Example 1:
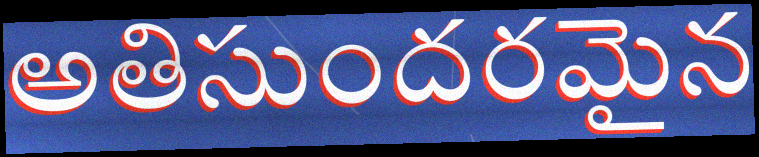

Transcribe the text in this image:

అతిసుందరమైన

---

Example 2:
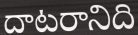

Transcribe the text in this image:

దాటరానిది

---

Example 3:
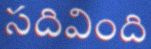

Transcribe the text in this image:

సదివింది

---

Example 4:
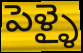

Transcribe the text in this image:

పెళ్ళై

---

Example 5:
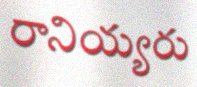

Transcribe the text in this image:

రానియ్యరు